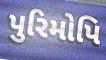
પુરિમોપિ